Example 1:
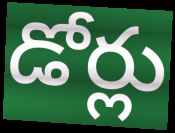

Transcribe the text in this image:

డోర్లు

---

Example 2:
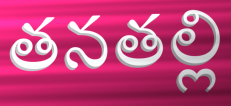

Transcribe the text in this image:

తనతల్లి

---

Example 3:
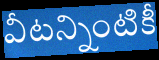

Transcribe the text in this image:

వీటన్నింటికీ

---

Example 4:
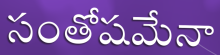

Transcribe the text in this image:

సంతోషమేనా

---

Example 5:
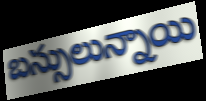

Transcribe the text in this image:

బస్సులున్నాయి